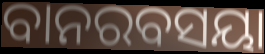
ବାନରବସୟା